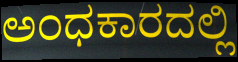
ಅಂಧಕಾರದಲ್ಲಿ